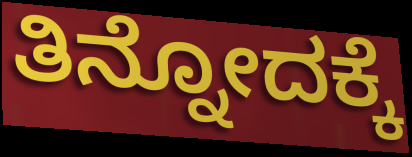
ತಿನ್ನೋದಕ್ಕೆ